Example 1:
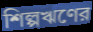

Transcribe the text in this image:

শিল্পঋণের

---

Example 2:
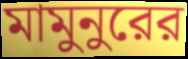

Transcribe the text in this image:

মামুনুরের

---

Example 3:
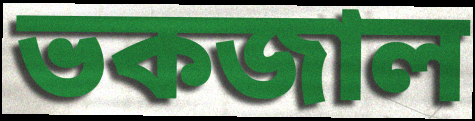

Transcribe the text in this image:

ভকজাল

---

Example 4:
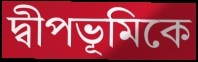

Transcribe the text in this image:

দ্বীপভূমিকে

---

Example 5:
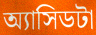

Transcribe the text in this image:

অ্যাসিডটা